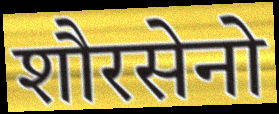
शौरसेनो